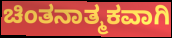
ಚಿಂತನಾತ್ಮಕವಾಗಿ